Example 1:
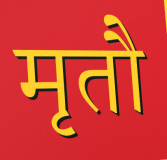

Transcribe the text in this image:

मृतौ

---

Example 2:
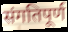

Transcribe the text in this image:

संगतिपूर्ण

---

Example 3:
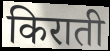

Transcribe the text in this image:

किराती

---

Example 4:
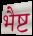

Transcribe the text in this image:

भैष्ट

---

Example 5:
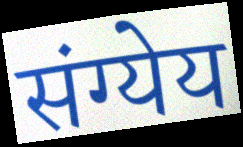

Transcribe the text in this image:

संग्येय